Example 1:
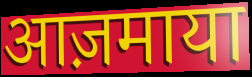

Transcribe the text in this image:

आज़माया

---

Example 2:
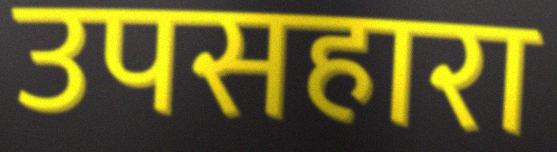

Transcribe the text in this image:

उपसहारा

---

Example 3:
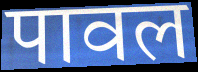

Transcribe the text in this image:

पावल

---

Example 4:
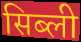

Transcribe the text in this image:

सिब्ली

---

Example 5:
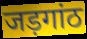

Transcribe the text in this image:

जड़गांठ